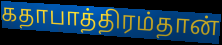
கதாபாத்திரம்தான்